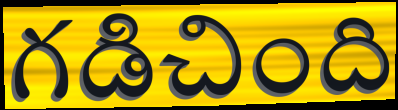
గడిచింది